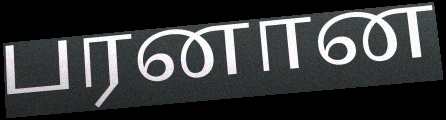
பரனான